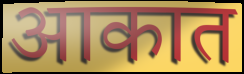
आकात